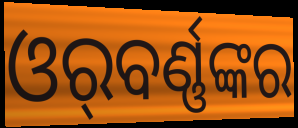
ଓର୍‌ବର୍ଣ୍ଣଙ୍କର